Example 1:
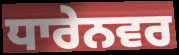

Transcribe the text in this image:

ਧਾਰੇਨਵਰ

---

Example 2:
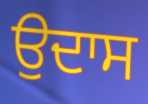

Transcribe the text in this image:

ਉਦਾਸ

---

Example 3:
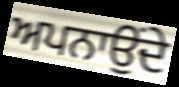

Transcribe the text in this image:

ਅਪਨਾਉਂਦੇ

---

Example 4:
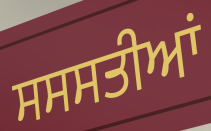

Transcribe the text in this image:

ਸਸਸਤੀਆਂ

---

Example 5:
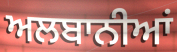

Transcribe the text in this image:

ਅਲਬਾਨੀਆਂ